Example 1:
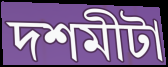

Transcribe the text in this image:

দশমীটা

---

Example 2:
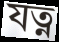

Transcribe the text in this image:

যত্ন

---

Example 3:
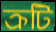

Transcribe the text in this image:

ক্রটি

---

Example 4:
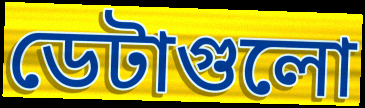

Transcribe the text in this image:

ডেটাগুলো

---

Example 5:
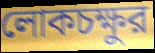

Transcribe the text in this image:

লোকচক্ষুর